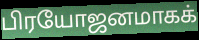
பிரயோஜனமாகக்